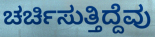
ಚರ್ಚಿಸುತ್ತಿದ್ದೆವು